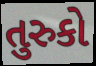
તુરુકો